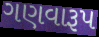
ગણવારૂપ